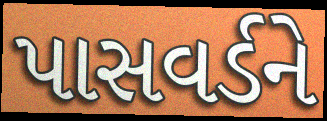
પાસવર્ડને